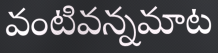
వంటివన్నమాట